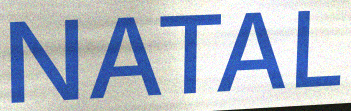
NATAL